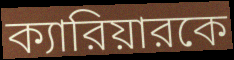
ক্যারিয়ারকে